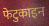
फेटुकाइन